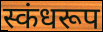
स्कंधरूप